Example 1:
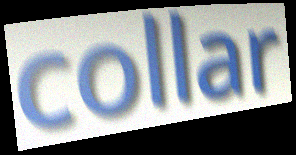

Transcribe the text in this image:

collar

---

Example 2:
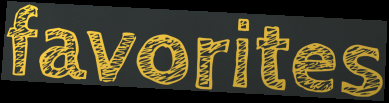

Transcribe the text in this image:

favorites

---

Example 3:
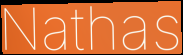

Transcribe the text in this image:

Nathas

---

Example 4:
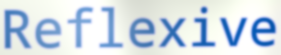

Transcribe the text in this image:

Reflexive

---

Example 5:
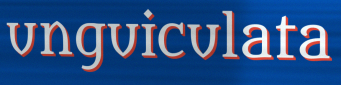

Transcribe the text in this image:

unguiculata